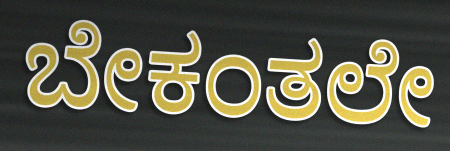
ಬೇಕಂತಲೇ